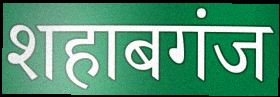
शहाबगंज